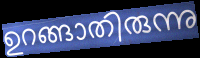
ഉറങ്ങാതിരുന്നു